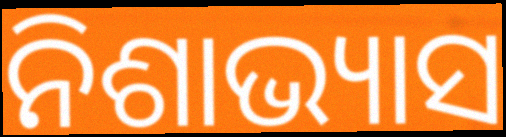
ନିଶାଭ୍ୟାସ